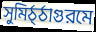
সুমিঠ্ঠাগুরমে